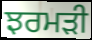
ਝਰਮੜੀ